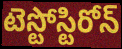
టెస్టోస్టిరోన్